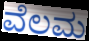
ವೆಲಮ